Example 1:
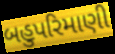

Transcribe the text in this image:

બહુપરિમાણી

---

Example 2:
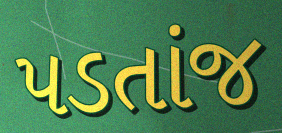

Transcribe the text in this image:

પડતાંજ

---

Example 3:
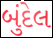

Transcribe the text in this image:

બુંદેલ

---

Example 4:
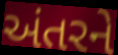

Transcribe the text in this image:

અંતરને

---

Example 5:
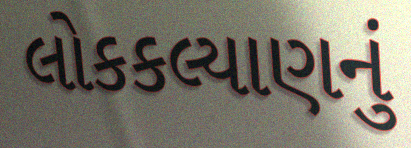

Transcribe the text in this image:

લોકકલ્યાણનું